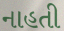
નાહતી